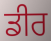
ਡੀਰ